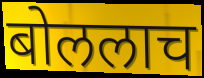
बोललाच